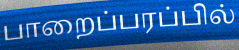
பாறைப்பரப்பில்